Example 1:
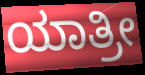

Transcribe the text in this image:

ಯಾತ್ರೀ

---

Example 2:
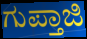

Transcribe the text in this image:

ಗುಪ್ತಾಜಿ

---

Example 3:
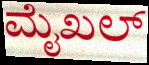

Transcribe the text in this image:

ಮೈಖಲ್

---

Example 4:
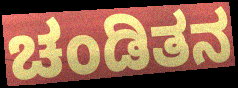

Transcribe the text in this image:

ಚಂಡಿತನ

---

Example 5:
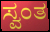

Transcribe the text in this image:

ಸ್ವಂತ